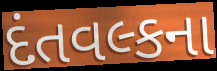
દંતવલ્કના